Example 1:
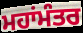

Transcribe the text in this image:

ਮਹਾਂਮੰਤਰ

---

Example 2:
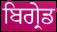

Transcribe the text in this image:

ਬਿਗ੍ਰੇਡ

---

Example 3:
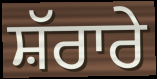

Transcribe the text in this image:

ਸ਼ੱਰਾਰੇ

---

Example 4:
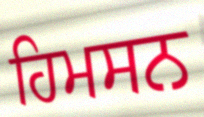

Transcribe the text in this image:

ਹਿਮਸਨ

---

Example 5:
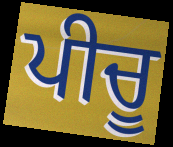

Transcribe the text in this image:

ਪੀਚੂ